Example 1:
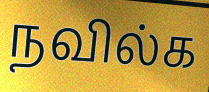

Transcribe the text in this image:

நவில்க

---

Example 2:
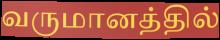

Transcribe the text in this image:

வருமானத்தில்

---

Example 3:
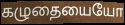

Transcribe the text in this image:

கழுதையையோ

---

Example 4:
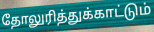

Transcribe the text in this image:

தோலுரித்துக்காட்டும்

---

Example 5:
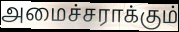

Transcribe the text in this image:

அமைச்சராக்கும்